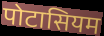
पोटासियम